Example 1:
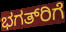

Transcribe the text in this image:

ಭಗತ್‍ರಿಗೆ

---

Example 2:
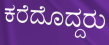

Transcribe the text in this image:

ಕರೆದೊದ್ದರು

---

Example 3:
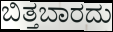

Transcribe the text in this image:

ಬಿತ್ತಬಾರದು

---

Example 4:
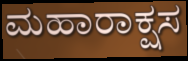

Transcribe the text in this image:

ಮಹಾರಾಕ್ಷಸ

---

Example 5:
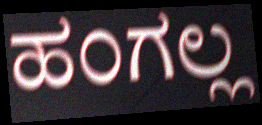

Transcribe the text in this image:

ಹಂಗಲ್ಲ